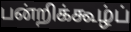
பன்றிக்கூழ்ப்